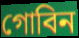
গোবিন